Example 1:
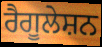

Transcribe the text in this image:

ਰੈਗੂਲੇਸ਼ਨ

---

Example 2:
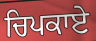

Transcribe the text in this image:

ਚਿਪਕਾਏ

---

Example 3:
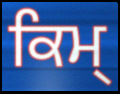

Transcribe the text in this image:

ਕਿਮ੍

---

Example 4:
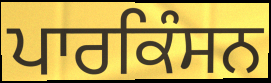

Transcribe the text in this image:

ਪਾਰਕਿੰਸਨ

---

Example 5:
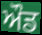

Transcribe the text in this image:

ਔਡ